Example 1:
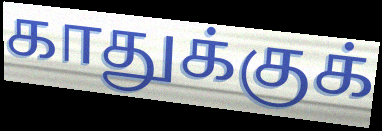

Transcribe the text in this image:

காதுக்குக்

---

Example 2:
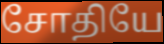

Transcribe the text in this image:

சோதியே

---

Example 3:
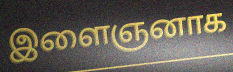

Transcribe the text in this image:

இளைஞனாக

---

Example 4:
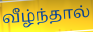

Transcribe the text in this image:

வீழ்ந்தால்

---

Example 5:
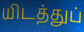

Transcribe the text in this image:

யிடத்துப்